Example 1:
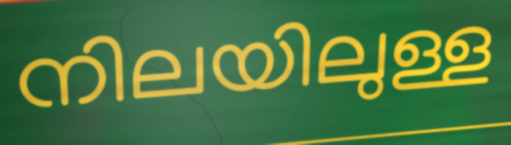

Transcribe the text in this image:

നിലയിലുള്ള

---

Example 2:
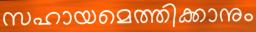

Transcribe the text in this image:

സഹായമെത്തിക്കാനും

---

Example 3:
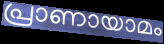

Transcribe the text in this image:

പ്രാണായാമം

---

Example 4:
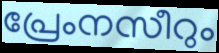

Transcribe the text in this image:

പ്രേംനസീറും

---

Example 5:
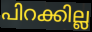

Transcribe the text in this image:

പിറക്കില്ല